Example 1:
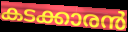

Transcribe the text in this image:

കടക്കാരൻ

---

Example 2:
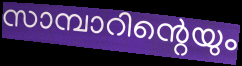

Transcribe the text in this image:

സാമ്പാറിന്റെയും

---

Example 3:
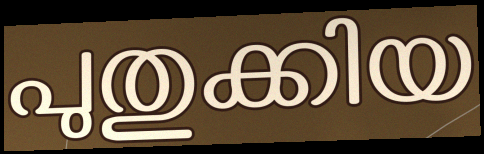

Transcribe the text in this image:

പുതുക്കിയ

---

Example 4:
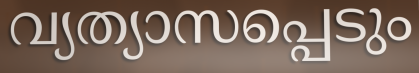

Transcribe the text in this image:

വ്യത്യാസപ്പെടും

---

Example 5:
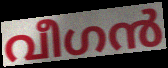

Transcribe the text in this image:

വീഗൻ